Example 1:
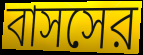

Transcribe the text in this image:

বাসসের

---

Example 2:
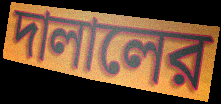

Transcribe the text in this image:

দালালের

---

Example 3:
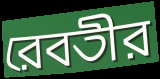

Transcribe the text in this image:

রেবতীর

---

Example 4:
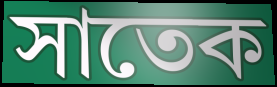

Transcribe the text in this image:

সাতেক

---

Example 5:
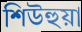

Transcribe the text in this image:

শিউহুয়া